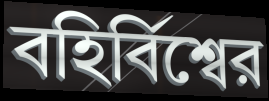
বহির্বিশ্বের